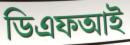
ডিএফআই